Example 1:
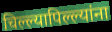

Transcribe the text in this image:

चिल्ल्यापिल्ल्यांना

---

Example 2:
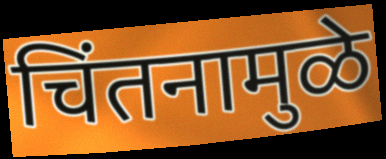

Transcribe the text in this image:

चिंतनामुळे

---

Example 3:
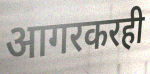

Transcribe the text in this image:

आगरकरही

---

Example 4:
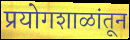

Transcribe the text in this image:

प्रयोगशाळांतून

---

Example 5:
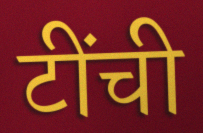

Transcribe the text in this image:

टींची